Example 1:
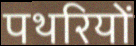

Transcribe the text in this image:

पथरियों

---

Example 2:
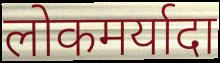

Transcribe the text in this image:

लोकमर्यादा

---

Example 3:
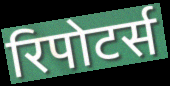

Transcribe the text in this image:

रिपोटर्स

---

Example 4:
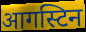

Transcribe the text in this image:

आगस्टिन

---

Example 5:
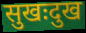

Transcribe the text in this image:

सुखःदुख